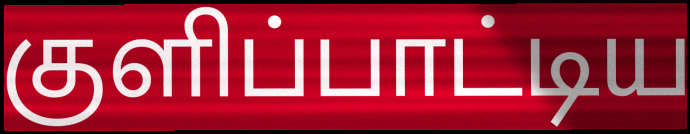
குளிப்பாட்டிய